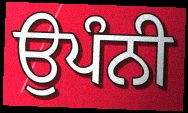
ਉਪੰਨੀ